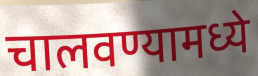
चालवण्यामध्ये